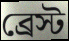
ব্রেস্ট